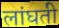
लांघती